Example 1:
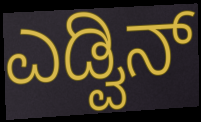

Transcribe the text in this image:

ಎಡ್ವಿನ್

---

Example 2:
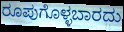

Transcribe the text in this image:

ರೂಪುಗೊಳ್ಳಬಾರದು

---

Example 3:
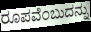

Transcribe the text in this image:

ರೂಪವೆಂಬುದನ್ನು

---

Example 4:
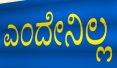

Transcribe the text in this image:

ಎಂದೇನಿಲ್ಲ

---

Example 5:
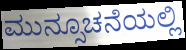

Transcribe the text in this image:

ಮುನ್ಸೂಚನೆಯಲ್ಲಿ